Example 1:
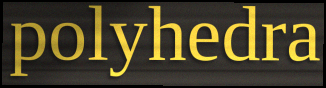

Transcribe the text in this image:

polyhedra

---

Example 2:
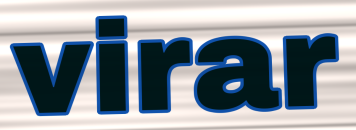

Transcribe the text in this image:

virar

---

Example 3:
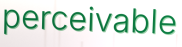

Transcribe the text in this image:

perceivable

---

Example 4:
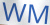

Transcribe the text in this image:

WM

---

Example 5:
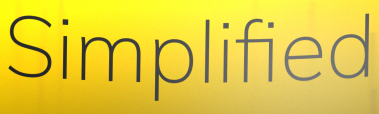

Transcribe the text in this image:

Simplified